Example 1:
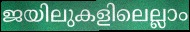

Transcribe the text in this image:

ജയിലുകളിലെല്ലാം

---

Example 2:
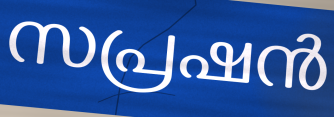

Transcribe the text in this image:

സപ്രഷൻ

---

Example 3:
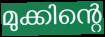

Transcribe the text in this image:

മുക്കിന്റെ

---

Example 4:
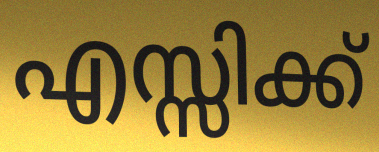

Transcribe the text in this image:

എസ്സിക്ക്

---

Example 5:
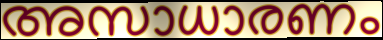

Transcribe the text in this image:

അസാധാരണം